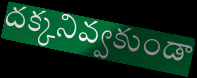
దక్కనివ్వకుండా